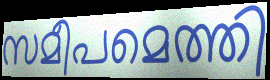
സമീപമെത്തി